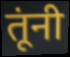
तूंनी